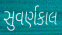
સુવર્ણકાલ